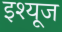
इश्यूज